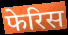
फेरिस